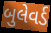
બુલેવર્ડ